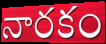
నారకం